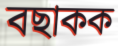
বছাকক